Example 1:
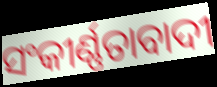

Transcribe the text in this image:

ସଂକୀର୍ଣ୍ଣତାବାଦୀ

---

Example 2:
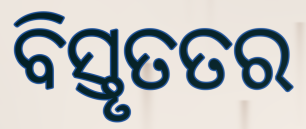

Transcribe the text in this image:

ବିସ୍ତୃତତର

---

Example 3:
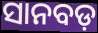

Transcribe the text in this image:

ସାନବଡ଼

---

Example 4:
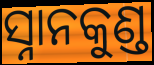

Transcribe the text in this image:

ସ୍ନାନକୁଣ୍ଡ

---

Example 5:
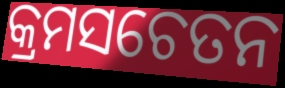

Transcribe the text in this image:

କ୍ରମସଚେତନ